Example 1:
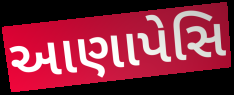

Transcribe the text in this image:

આણાપેસિ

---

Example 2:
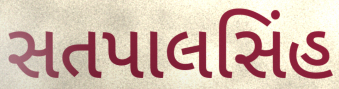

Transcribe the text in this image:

સતપાલસિંહ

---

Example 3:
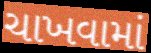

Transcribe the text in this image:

ચાખવામાં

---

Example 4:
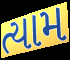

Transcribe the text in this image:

ત્યામ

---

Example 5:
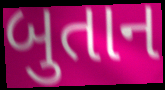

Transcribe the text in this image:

બુતાન